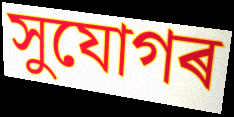
সুযোগৰ